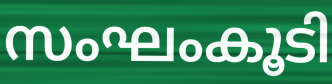
സംഘംകൂടി